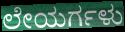
ಲೇಯರ್ಗಳು